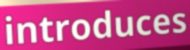
introduces